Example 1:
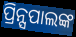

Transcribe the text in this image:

ପ୍ରିନ୍ସପାଲଙ୍କ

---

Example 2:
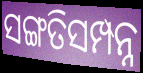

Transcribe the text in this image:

ସଙ୍ଗତିସମ୍ପନ୍ନ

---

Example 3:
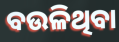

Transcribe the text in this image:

ବଉଳିଥିବା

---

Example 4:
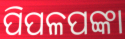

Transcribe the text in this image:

ପିପଳପଙ୍କା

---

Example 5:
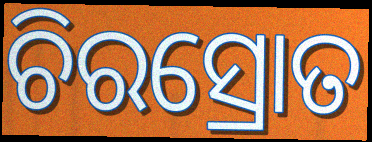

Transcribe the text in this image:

ଚିରସ୍ରୋତ